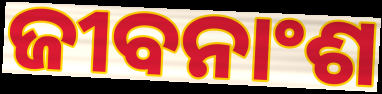
ଜୀବନାଂଶ